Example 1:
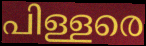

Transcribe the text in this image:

പിള്ളരെ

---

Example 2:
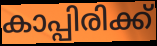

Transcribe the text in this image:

കാപ്പിരിക്ക്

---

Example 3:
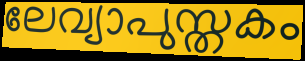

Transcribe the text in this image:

ലേവ്യാപുസ്തകം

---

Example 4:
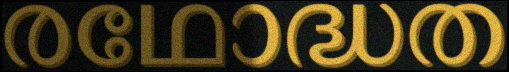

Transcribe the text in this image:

രഥോദ്ധത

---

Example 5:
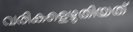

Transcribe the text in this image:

വരികളെഴുതിയത്